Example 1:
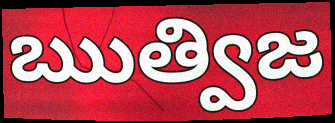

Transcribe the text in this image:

ఋత్విజ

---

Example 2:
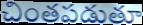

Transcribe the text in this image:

చింతపడుతూ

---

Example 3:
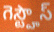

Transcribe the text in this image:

గెస్ట్హౌస్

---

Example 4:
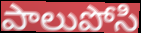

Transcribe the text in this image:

పాలుపోసి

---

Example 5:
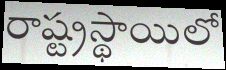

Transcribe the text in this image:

రాష్ట్రస్థాయిలో